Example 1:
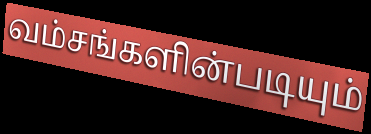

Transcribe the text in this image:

வம்சங்களின்படியும்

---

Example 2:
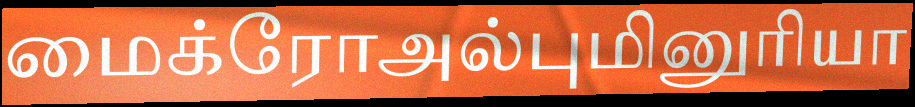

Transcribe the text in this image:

மைக்ரோஅல்புமினுரியா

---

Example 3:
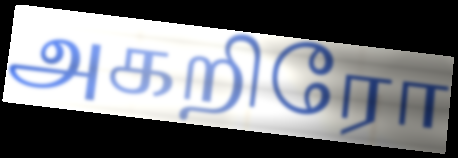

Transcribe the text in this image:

அகறிரோ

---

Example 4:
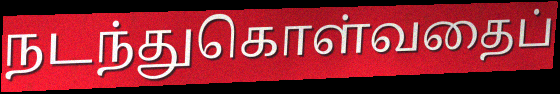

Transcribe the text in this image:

நடந்துகொள்வதைப்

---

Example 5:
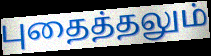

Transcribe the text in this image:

புதைத்தலும்